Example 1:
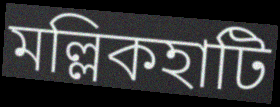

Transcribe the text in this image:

মল্লিকহাটি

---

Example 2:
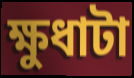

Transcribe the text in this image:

ক্ষুধাটা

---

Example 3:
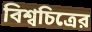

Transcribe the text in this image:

বিশ্বচিত্রের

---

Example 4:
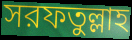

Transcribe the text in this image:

সরফতুল্লাহ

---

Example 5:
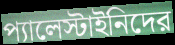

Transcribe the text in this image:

প্যালেস্টাইনিদের